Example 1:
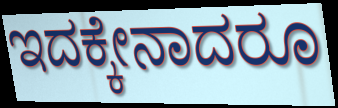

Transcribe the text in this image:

ಇದಕ್ಕೇನಾದರೂ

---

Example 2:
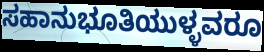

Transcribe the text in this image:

ಸಹಾನುಭೂತಿಯುಳ್ಳವರೂ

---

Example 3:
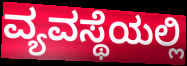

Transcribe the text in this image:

ವ್ಯವಸ್ಥೆಯಲ್ಲಿ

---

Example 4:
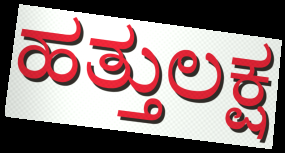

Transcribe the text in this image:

ಹತ್ತುಲಕ್ಷ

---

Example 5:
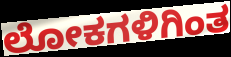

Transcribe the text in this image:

ಲೋಕಗಳಿಗಿಂತ